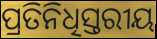
ପ୍ରତିନିଧିସ୍ତରୀୟ